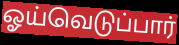
ஓய்வெடுப்பார்